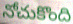
నోచుకొంది